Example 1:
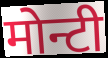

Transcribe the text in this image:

मोन्टी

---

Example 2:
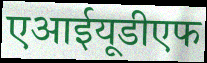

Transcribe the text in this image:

एआईयूडीएफ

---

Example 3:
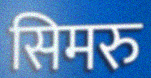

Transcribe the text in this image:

सिमरु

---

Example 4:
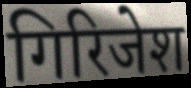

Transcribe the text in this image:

गिरिजेश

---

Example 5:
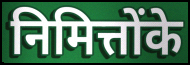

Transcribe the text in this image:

निमित्तोंके